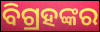
ବିଗ୍ରହଙ୍କର